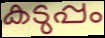
കടുപ്പം